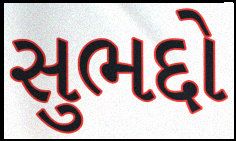
સુભદ્દો